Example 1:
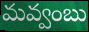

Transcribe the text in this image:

మవ్వంబు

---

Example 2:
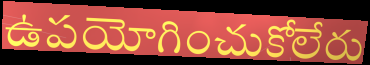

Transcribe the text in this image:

ఉపయోగించుకోలేరు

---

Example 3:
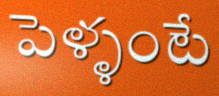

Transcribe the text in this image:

పెళ్ళంటే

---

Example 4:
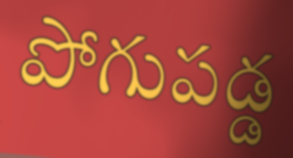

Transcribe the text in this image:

పోగుపడ్డ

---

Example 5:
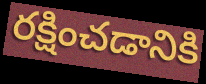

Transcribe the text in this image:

రక్షించడానికి